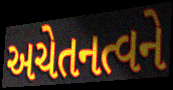
અચેતનત્વને